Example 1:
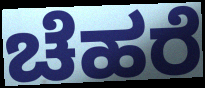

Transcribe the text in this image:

ಚೆಹರೆ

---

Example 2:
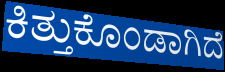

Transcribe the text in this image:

ಕಿತ್ತುಕೊಂಡಾಗಿದೆ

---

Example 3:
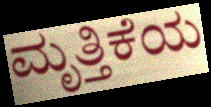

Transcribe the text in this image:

ಮೃತ್ತಿಕೆಯ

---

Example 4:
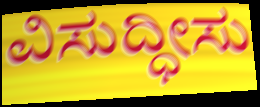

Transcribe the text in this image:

ವಿಸುದ್ಧೀಸು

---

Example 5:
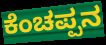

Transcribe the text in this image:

ಕೆಂಚಪ್ಪನ